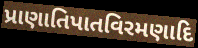
પ્રાણાતિપાતવિરમણાદિ